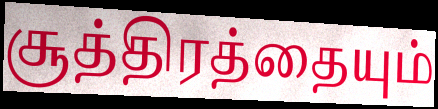
சூத்திரத்தையும்